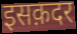
इसक़दर